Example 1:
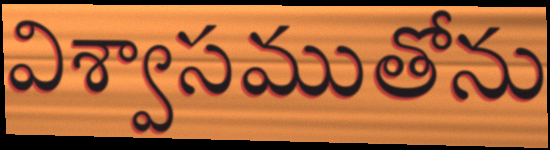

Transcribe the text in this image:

విశ్వాసముతోను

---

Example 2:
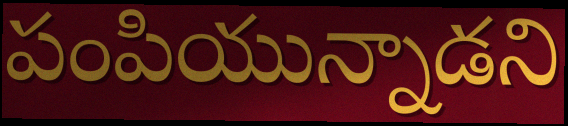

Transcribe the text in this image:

పంపియున్నాడని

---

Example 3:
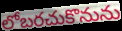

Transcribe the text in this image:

లోబరచుకొనును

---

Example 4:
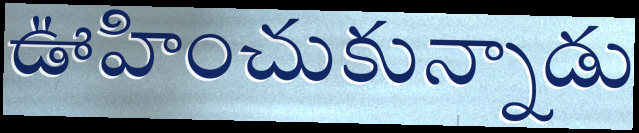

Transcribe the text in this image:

ఊహించుకున్నాడు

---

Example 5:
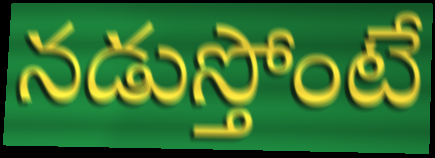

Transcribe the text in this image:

నడుస్తోంటే